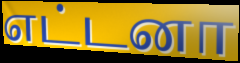
எட்டனா